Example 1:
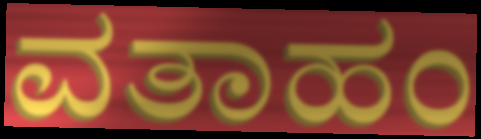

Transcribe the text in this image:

ವತಾಹಂ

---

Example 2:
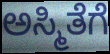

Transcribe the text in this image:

ಅಸ್ಮಿತೆಗೆ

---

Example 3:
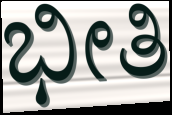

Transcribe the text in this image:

ಭೀತಿ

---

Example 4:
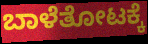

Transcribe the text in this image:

ಬಾಳೆತೋಟಕ್ಕೆ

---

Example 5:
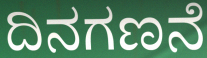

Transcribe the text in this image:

ದಿನಗಣನೆ